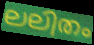
ലലിതം